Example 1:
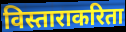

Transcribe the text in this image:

विस्ताराकरिता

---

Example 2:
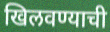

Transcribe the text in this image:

खिलवण्याची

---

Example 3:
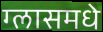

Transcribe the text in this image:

ग्लासमधे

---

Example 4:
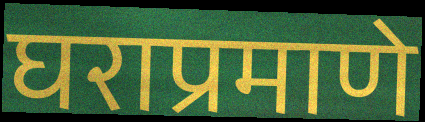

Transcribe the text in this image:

घराप्रमाणे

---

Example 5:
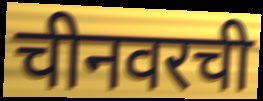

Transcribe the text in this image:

चीनवरची